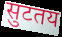
सुटतय